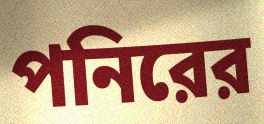
পনিরের